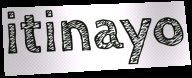
itinayo